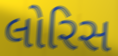
લોરિસ